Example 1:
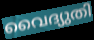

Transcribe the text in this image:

വൈദ്യുതി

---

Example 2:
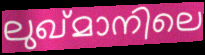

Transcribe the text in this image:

ലുഖ്മാനിലെ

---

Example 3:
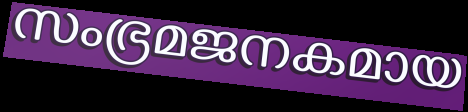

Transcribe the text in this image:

സംഭ്രമജനകമായ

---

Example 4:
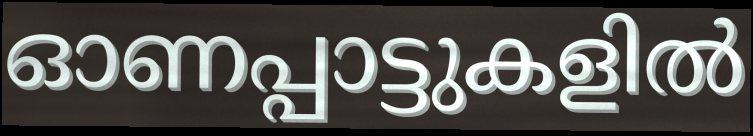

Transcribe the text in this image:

ഓണപ്പാട്ടുകളിൽ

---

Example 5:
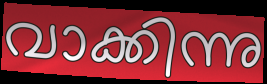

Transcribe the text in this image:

വാക്കിന്നു